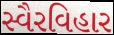
સ્વૈરવિહાર